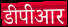
डीपीआर